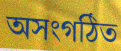
অসংগঠিত